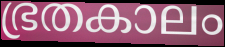
ഭ്രതകാലം